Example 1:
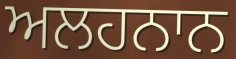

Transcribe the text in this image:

ਅਲਹਨਾਨ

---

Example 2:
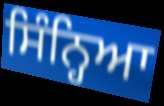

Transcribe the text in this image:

ਸਿੰਨ੍ਹਿਆ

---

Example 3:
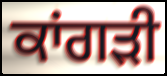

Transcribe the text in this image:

ਕਾਂਗੜੀ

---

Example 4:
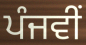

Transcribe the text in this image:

ਪੰਜਵੀਂ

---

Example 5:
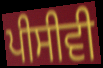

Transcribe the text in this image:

ਪੀਸੀਵੀ